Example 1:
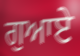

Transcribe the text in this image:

ਗੁਆਏ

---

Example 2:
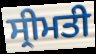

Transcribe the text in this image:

ਸ੍ਰੀਮਤੀ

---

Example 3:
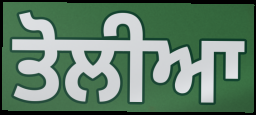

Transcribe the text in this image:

ਤੋਲੀਆ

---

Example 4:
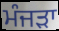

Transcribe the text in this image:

ਮੰਜੜਾ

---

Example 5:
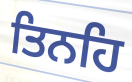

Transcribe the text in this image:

ਤਿਨਹਿ